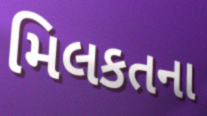
મિલકતના